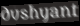
dushyant